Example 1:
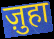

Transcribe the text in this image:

ज़ुहा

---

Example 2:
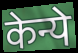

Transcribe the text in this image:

केन्ये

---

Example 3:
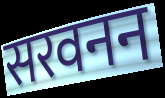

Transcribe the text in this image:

सरवनन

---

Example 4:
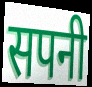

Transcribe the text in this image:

सपनी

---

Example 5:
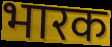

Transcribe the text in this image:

भारक